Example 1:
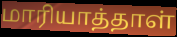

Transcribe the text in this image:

மாரியாத்தாள்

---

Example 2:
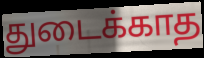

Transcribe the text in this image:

துடைக்காத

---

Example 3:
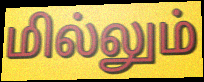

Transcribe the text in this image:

மில்லும்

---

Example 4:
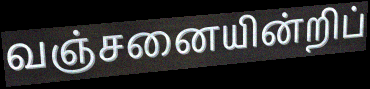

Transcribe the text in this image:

வஞ்சனையின்றிப்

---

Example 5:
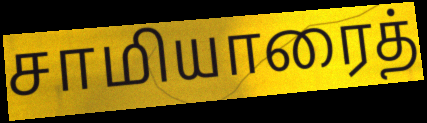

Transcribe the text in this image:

சாமியாரைத்